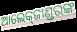
ଆଲେକ୍‍ଜାଣ୍ଡରଙ୍କ